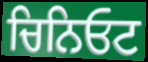
ਚਿਨਿਓਟ